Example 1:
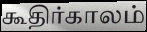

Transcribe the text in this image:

கூதிர்காலம்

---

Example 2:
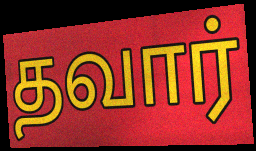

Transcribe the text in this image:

தவார்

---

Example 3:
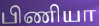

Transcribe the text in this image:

பிணியா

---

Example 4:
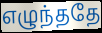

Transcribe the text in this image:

எழுந்ததே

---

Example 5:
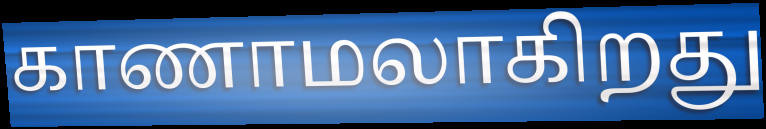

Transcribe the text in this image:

காணாமலாகிறது